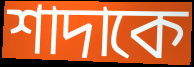
শাদাকে